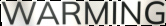
WARMING